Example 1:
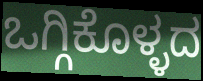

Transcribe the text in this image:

ಒಗ್ಗಿಕೊಳ್ಳದ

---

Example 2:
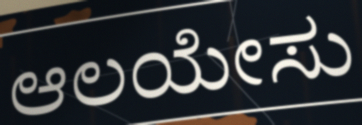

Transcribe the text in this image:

ಆಲಯೇಸು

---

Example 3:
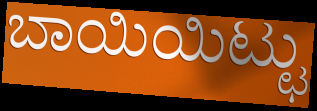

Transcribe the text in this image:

ಬಾಯಿಯಿಟ್ಟು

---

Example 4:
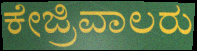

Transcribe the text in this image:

ಕೇಜ್ರಿವಾಲರು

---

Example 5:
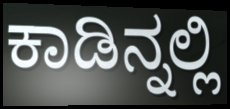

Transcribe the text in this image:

ಕಾಡಿನ್ನಲ್ಲಿ